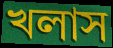
খলাস